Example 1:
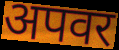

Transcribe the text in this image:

अपवर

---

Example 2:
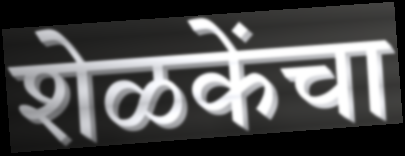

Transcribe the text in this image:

शेळकेंचा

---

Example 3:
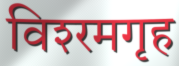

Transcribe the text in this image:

विश्रमगृह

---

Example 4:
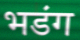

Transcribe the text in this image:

भडंग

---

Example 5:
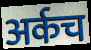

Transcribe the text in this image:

अर्कच